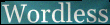
Wordless